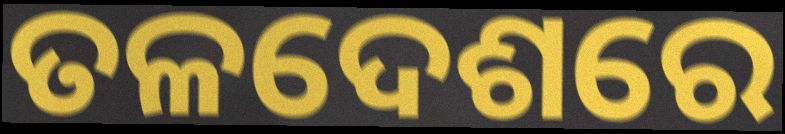
ତଳଦେଶରେ